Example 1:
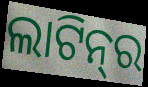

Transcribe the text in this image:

ଲାଟିନ୍‌ର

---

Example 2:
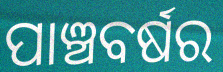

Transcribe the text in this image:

ପାଞ୍ଚବର୍ଷର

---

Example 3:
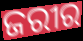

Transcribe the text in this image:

ଜରୀର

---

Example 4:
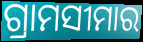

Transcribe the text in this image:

ଗ୍ରାମସୀମାର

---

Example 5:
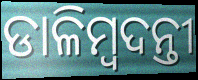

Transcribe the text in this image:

ଡାଳିମ୍ବଦନ୍ତୀ